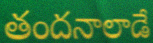
తందనాలాడే